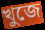
খুজে